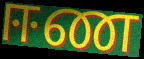
ஈண